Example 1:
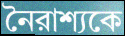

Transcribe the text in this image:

নৈরাশ্যকে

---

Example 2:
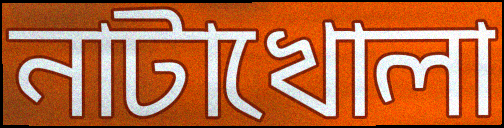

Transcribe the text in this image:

নাটাখোলা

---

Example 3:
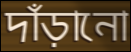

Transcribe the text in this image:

দাঁড়ানো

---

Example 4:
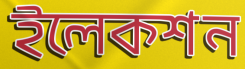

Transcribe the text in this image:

ইলেকশন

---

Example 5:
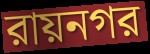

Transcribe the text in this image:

রায়নগর